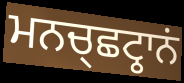
ਮਨਚ੍ਛਟ੍ਠਾਨਂ